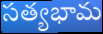
సత్యభామ